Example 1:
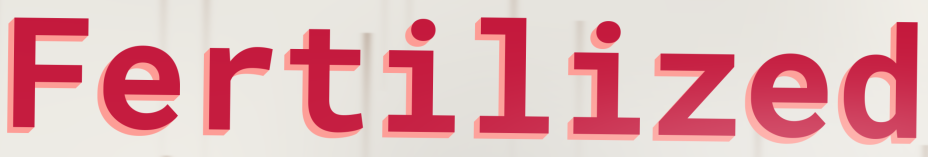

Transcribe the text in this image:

Fertilized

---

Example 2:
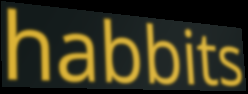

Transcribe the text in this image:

habbits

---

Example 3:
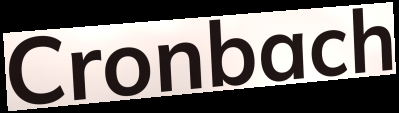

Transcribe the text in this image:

Cronbach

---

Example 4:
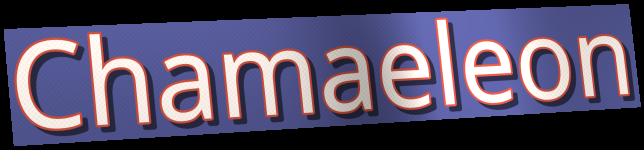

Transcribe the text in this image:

Chamaeleon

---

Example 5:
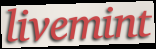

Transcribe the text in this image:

livemint